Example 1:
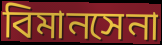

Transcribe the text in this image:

বিমানসেনা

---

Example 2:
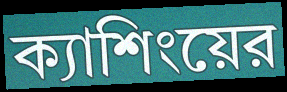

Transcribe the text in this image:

ক্যাশিংয়ের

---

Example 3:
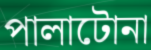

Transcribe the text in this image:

পালাটোনা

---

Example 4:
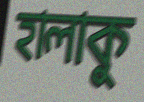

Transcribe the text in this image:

হালাকু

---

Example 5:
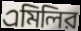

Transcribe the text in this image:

এমিলির